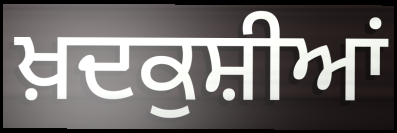
ਖ਼ਦਕੁਸ਼ੀਆਂ